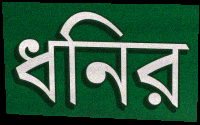
ধনির